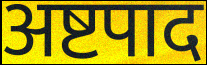
अष्टपाद